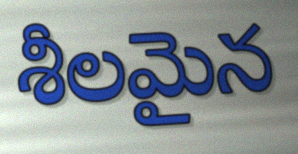
శీలమైన